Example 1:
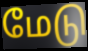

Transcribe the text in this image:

மேடு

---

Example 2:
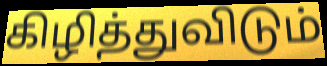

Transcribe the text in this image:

கிழித்துவிடும்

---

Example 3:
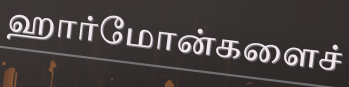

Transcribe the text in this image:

ஹார்மோன்களைச்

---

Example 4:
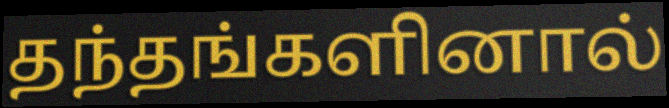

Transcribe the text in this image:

தந்தங்களினால்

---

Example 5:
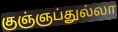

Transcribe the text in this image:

குஞ்ஞப்துல்லா